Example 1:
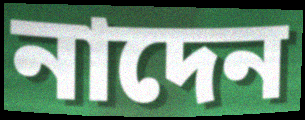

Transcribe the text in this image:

নাদেন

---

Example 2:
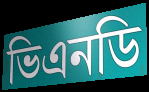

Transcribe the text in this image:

ভিএনডি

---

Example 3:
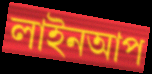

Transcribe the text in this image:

লাইনআপ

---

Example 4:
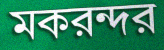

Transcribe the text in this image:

মকরন্দর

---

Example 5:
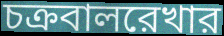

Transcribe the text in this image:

চক্রবালরেখার